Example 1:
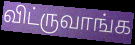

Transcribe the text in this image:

விட்ருவாங்க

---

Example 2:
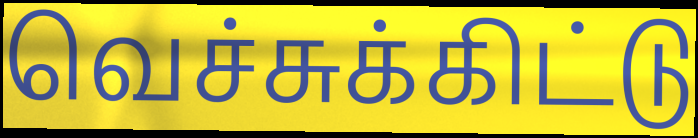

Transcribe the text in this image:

வெச்சுக்கிட்டு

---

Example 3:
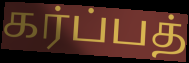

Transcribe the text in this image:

கர்ப்பத்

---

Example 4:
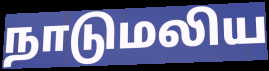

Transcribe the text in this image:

நாடுமலிய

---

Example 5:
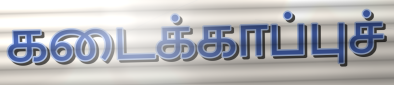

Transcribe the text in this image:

கடைக்காப்புச்